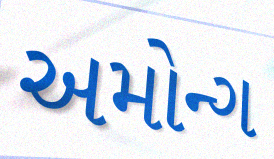
અમોન્ગ